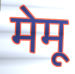
मेमू